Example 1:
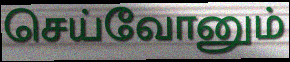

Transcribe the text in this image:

செய்வோனும்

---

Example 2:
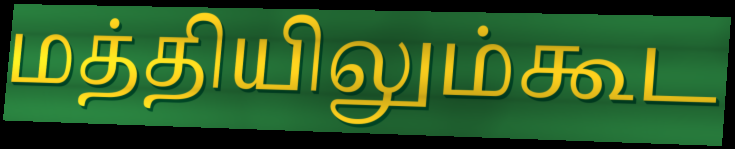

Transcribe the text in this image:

மத்தியிலும்கூட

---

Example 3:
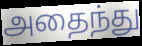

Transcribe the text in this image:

அதைந்து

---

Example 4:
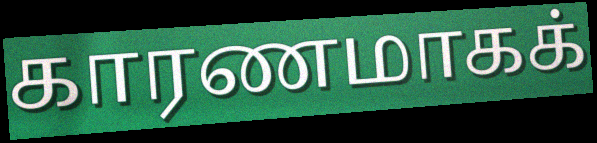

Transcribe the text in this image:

காரணமாகக்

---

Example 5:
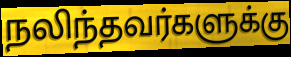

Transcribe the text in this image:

நலிந்தவர்களுக்கு